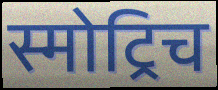
स्मोट्रिच